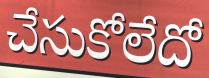
చేసుకోలేదో